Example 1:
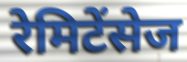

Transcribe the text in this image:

रेमिटेंसेज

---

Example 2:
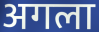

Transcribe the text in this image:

अगला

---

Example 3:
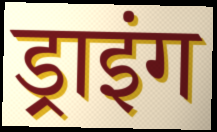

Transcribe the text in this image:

ड्राइंग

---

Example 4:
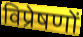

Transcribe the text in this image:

विप्रेषणों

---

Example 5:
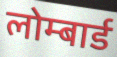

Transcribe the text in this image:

लोम्बार्ड